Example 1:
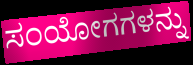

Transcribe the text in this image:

ಸಂಯೋಗಗಳನ್ನು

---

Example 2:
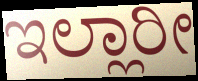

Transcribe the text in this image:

ಇಲ್ಲಾರೀ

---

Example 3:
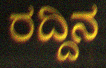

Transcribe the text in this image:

ರದ್ದಿನ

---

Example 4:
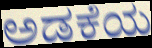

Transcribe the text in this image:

ಅಡಕೆಯ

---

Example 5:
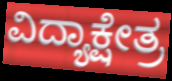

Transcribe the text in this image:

ವಿದ್ಯಾಕ್ಷೇತ್ರ